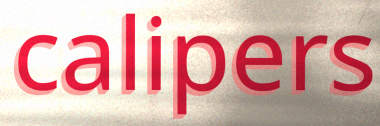
calipers